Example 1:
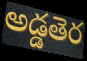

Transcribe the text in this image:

అడ్డతెర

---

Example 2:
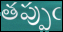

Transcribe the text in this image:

తప్పుఁ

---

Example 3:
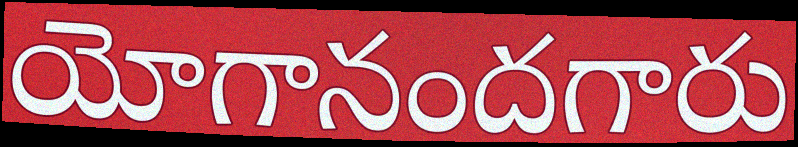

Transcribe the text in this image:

యోగానందగారు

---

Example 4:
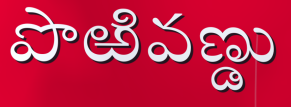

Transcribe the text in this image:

పొఱివణ్డు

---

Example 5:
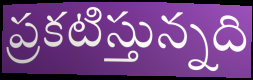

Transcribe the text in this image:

ప్రకటిస్తున్నది